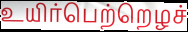
உயிர்பெற்றெழச்